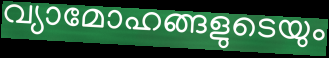
വ്യാമോഹങ്ങളുടെയും